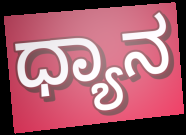
ಧ್ಯಾನ